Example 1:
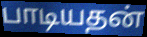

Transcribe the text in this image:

பாடியதன்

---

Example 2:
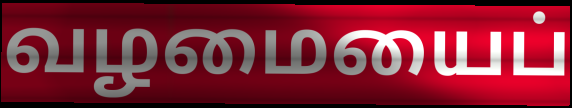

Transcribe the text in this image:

வழமையைப்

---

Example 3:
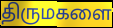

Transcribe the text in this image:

திருமகளை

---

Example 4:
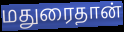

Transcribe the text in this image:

மதுரைதான்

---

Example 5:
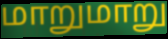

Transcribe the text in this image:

மாறுமாறு